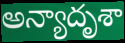
అన్యాదృశా